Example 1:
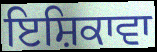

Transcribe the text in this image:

ਇਸ਼ਿਕਾਵਾ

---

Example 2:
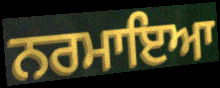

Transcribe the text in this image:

ਨਰਮਾਇਆ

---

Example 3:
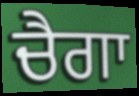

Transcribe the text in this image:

ਚੈਗਾ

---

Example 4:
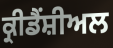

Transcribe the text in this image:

ਕ੍ਰੀਡੈਂਸ਼ੀਅਲ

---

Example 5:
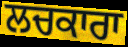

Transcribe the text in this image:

ਲਚਕਾਰਾ